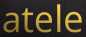
atele